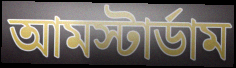
আমস্টার্ডাম